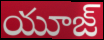
యూజ్